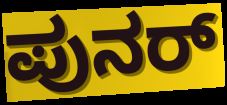
ಪುನರ್